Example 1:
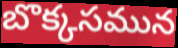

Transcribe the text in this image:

బొక్కసమున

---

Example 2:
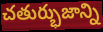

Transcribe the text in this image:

చతుర్భుజాన్ని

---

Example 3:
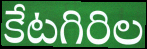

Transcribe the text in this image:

కేటగిరిల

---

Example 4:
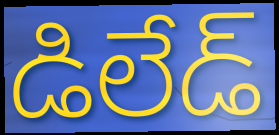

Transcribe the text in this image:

డిలేడ్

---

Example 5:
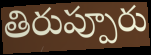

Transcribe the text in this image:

తిరుప్పూరు